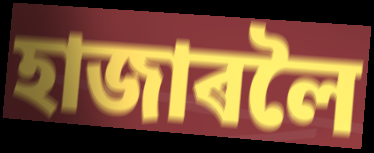
হাজাৰলৈ